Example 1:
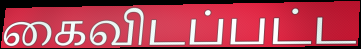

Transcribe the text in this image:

கைவிடப்பட்ட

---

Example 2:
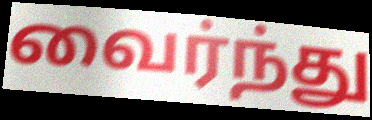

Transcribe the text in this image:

வைர்ந்து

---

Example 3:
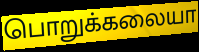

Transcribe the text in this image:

பொறுக்கலையா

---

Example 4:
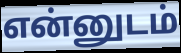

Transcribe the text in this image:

என்னுடம்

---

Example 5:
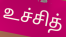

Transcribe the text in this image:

உச்சித்